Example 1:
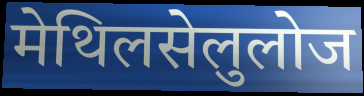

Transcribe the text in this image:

मेथिलसेलुलोज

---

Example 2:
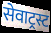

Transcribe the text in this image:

सेवाट्रस्ट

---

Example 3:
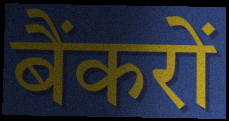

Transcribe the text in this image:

बैंकरों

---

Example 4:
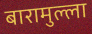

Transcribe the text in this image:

बारामुल्‍ला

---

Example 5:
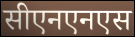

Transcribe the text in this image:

सीएनएनएस